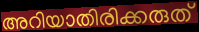
അറിയാതിരിക്കരുത്